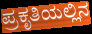
ಪ್ರಕೃತಿಯಲ್ಲಿನ